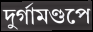
দুর্গামণ্ডপে